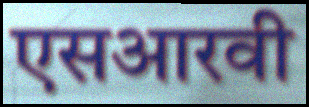
एसआरवी